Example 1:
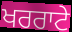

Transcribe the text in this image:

ਖਰਰਾਟੇ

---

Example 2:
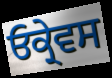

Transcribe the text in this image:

ਓਕ੍ਰੇਵਸ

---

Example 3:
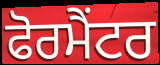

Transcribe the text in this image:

ਫੋਰਮੈਂਟਰ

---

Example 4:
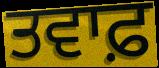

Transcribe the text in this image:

ਤਵਾਫ਼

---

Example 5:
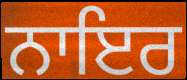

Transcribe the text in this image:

ਨਾਇਰ